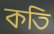
কতি